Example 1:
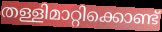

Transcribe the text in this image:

തള്ളിമാറ്റിക്കൊണ്ട്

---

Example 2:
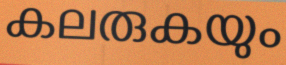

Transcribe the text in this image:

കലരുകയും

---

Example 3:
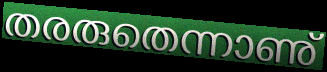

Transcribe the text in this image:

തരരുതെന്നാണു്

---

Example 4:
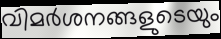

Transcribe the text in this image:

വിമർശനങ്ങളുടെയും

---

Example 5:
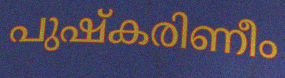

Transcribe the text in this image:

പുഷ്കരിണീം